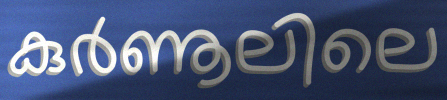
കുർണൂലിലെ